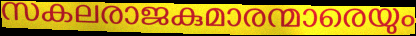
സകലരാജകുമാരന്മാരെയും